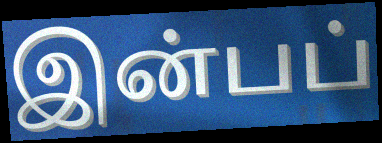
இன்பப்